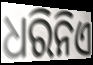
ଧରିନିଏ